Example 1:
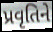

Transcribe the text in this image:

પ્રવૃતિને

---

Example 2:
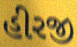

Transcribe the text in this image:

હીરજી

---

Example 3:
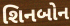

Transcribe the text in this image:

શિનબોન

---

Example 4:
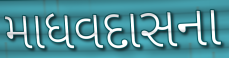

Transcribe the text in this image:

માધવદાસના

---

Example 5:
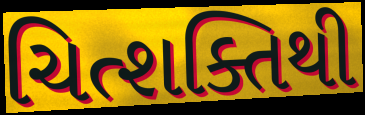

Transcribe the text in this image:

ચિત્શક્તિથી